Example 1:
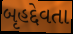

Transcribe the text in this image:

બૃહદ્દેવતા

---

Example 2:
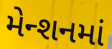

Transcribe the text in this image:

મેન્શનમાં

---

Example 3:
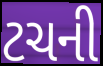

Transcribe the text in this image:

ટચની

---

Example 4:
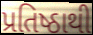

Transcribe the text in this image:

પ્રતિષ્ઠાથી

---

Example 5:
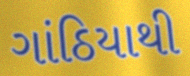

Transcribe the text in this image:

ગાંઠિયાથી